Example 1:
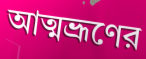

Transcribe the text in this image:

আত্মভ্রূণের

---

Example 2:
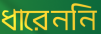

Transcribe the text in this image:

ধারেননি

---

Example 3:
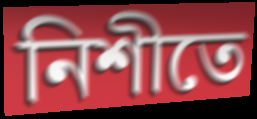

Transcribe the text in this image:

নিশীতে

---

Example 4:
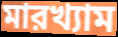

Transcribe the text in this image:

মারখ্যাম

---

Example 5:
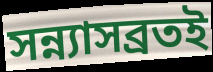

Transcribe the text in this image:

সন্ন্যাসব্রতই